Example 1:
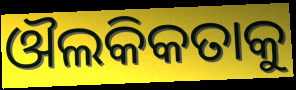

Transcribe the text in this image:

ଔଲକିକତାକୁ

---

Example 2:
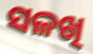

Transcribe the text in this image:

ସଳଖି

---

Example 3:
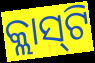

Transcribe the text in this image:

କ୍ଲାସ୍‍ଟି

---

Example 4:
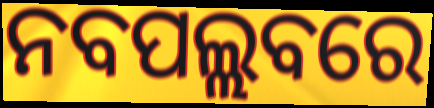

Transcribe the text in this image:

ନବପଲ୍ଲବରେ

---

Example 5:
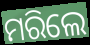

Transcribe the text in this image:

ମରିଲେ